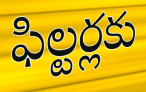
ఫిల్టర్లకు